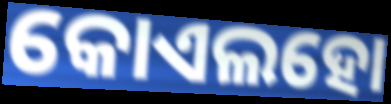
କୋଏଲହୋ